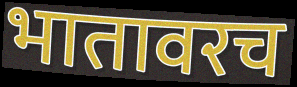
भातावरच